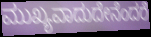
ಮುಖ್ಯವಾದುದೇನೆಂದರೆ